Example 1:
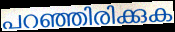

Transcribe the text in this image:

പറഞ്ഞിരിക്കുക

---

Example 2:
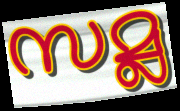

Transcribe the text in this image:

സമ്ല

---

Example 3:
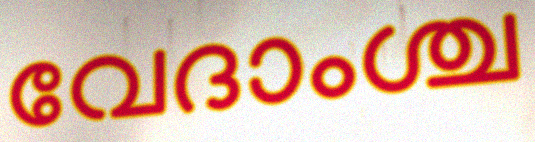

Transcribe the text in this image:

വേദാംശ്ച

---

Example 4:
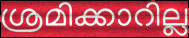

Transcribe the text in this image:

ശ്രമിക്കാറില്ല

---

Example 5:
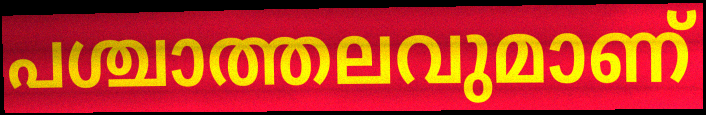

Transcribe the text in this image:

പശ്ചാത്തലവുമാണ്